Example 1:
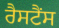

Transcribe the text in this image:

ਰੈਸਟੈਂਸ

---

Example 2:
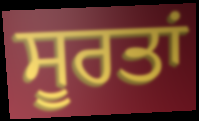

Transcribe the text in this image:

ਸੂਰਤਾਂ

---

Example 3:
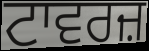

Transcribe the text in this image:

ਟਾਵਰਜ਼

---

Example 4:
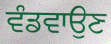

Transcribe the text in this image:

ਵੰਡਵਾਉਣ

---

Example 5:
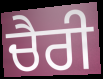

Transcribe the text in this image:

ਚੈਰੀ